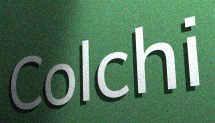
Colchi